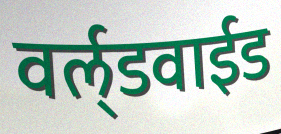
वर्ल्डवाईड